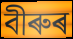
বীৰুৰ